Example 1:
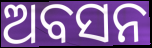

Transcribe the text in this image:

ଅବସନ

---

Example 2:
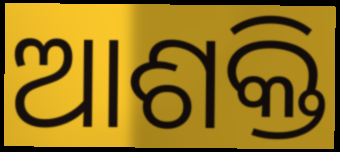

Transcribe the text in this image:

ଆଶକ୍ତି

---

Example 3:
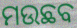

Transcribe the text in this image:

ମଉଛବ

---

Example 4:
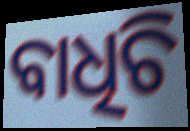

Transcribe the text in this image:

ବାଧିଚି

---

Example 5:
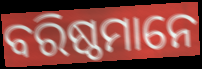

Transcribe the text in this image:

ବରିଷ୍ଠମାନେ